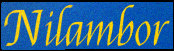
Nilambor